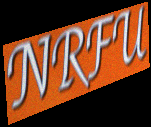
NRFU